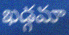
ఖడ్గమా